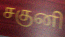
சகுனி